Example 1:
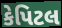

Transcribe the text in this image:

કેપિટલ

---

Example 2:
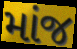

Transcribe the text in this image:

માંજ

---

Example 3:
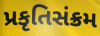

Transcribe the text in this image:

પ્રકૃતિસંક્રમ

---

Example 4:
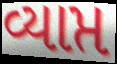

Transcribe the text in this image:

વ્યાપ્ત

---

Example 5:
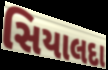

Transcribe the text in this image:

સિયાલદા